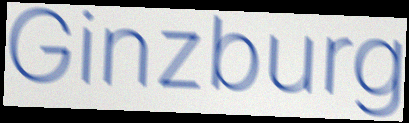
Ginzburg